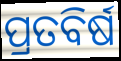
ପ୍ରତବିର୍ଷ